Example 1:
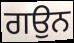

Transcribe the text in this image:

ਗਉਨ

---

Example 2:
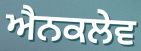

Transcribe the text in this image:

ਐਨਕਲੇਵ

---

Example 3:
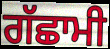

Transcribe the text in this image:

ਗੱਛਾਮੀ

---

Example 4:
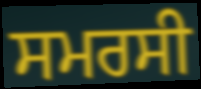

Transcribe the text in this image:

ਸਮਰਸੀ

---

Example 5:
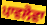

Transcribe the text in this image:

ਪਾਵਲੋਵਾ